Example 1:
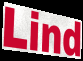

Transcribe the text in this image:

Lind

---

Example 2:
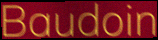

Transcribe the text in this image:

Baudoin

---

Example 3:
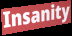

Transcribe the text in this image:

Insanity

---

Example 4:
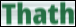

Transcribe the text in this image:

Thath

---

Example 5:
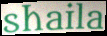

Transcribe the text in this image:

shaila